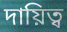
দায়িত্ব